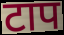
टाप